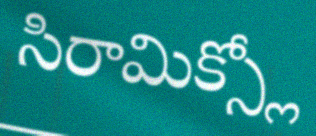
సిరామిక్స్లో